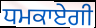
ਧਮਕਾਏਗੀ